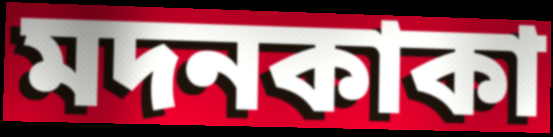
মদনকাকা